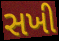
સખી